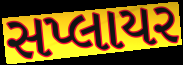
સપ્લાયર